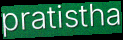
pratistha